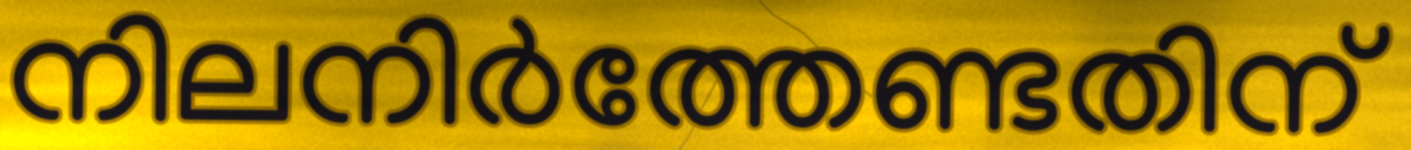
നിലനിർത്തേണ്ടതിന്